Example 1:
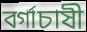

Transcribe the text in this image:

বর্গাচাষী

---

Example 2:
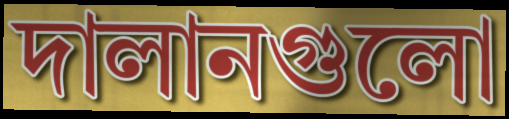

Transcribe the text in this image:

দালানগুলো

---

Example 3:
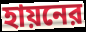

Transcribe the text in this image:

হায়নের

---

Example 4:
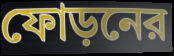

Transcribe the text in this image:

ফোড়নের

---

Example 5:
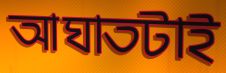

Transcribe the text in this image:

আঘাতটাই